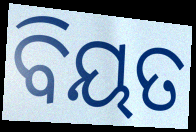
ବିୟତ